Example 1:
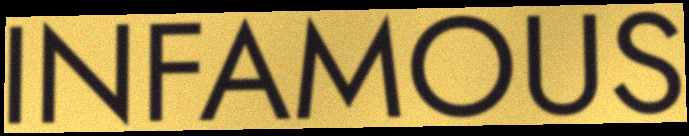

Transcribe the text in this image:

INFAMOUS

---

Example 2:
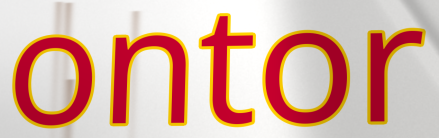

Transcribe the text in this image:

ontor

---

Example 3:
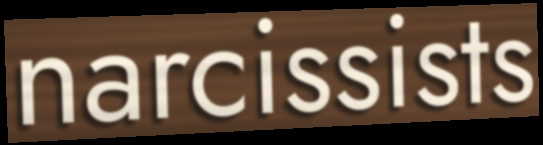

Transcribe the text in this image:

narcissists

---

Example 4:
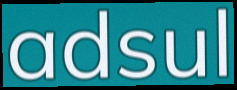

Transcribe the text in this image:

adsul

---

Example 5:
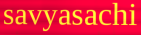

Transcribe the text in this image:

savyasachi